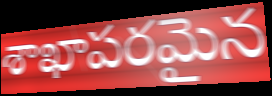
శాఖాపరమైన